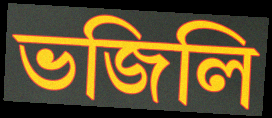
ভজিলি